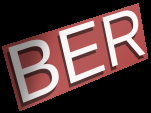
BER